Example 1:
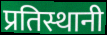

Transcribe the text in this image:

प्रतिस्थानी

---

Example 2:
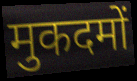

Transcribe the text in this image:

मुकदमों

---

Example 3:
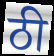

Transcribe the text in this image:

ठी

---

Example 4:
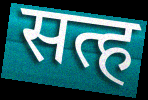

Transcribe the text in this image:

सत्ह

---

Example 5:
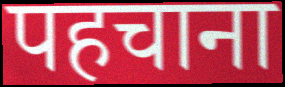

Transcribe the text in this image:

पहचाना